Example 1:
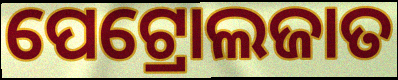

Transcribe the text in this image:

ପେଟ୍ରୋଲଜାତ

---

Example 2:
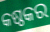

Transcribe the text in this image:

କଷ୍ଠକର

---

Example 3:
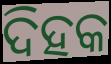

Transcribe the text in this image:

ଦିହକ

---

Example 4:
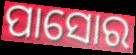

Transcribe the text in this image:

ପାସୋର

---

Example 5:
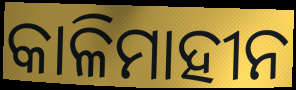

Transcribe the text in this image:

କାଳିମାହୀନ